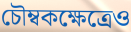
চৌম্বকক্ষেত্রেও